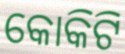
କୋକିଟି